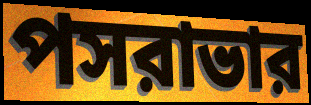
পসরাভার